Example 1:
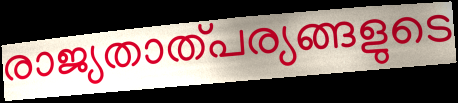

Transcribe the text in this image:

രാജ്യതാത്പര്യങ്ങളുടെ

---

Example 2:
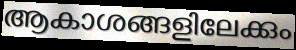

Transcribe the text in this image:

ആകാശങ്ങളിലേക്കും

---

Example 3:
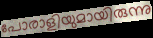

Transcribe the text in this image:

പോരാളിയുമായിരുന്നു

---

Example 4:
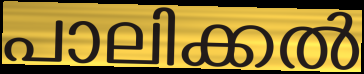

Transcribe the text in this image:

പാലിക്കൽ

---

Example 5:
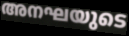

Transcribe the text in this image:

അനഘയുടെ